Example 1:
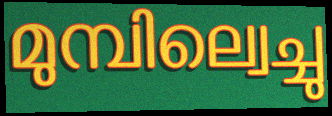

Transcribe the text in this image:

മുമ്പില്വെച്ചു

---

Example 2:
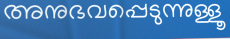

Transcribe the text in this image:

അനുഭവപ്പെടുന്നുള്ളൂ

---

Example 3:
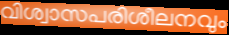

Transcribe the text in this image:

വിശ്വാസപരിശീലനവും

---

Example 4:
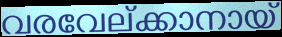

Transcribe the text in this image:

വരവേല്ക്കാനായ്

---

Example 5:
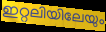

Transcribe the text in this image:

ഇറ്റലിയിലേയും